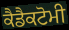
ਕੈਡੈਕਟੋਮੀ